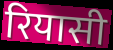
रियासी